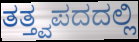
ತತ್ತ್ವಪದದಲ್ಲಿ